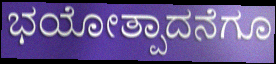
ಭಯೋತ್ಪಾದನೆಗೂ